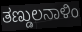
ತಣ್ಡುಲನಾಳಿಂ